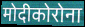
मोदीकोरोना